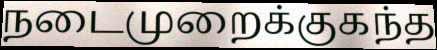
நடைமுறைக்குகந்த